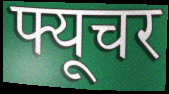
फ्यूचर